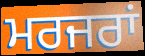
ਮਰਜਰਾਂ